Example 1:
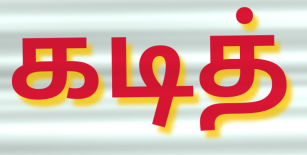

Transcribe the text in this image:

கடித்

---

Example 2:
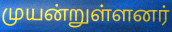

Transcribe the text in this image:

முயன்றுள்ளனர்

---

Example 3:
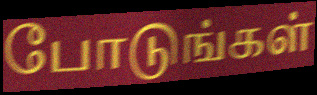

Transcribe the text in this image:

போடுங்கள்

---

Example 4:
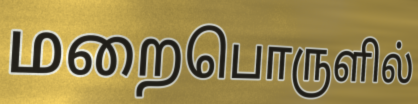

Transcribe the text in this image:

மறைபொருளில்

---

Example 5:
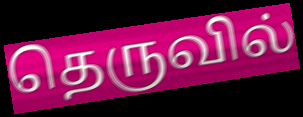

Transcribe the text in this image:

தெருவில்